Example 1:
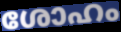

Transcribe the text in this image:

ശോഹം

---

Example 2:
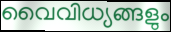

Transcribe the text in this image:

വൈവിധ്യങ്ങളും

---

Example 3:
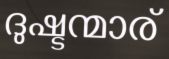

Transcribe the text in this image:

ദുഷ്ടന്മാര്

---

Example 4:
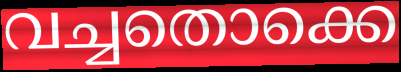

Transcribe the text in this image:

വച്ചതൊക്കെ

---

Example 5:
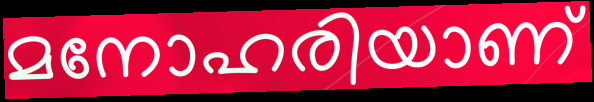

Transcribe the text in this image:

മനോഹരിയാണ്